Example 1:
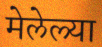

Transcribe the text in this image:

मेलेल्या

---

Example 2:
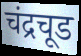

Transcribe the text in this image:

चंद्रचूड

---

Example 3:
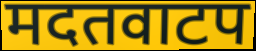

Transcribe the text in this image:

मदतवाटप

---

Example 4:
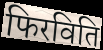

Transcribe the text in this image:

फिरविति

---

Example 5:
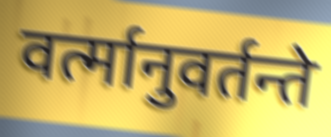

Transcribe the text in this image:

वर्त्मानुवर्तन्ते